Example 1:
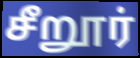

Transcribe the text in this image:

சீறூர்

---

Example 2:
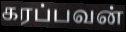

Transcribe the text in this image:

கரப்பவன்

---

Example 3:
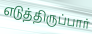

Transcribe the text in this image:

எடுத்திருப்பார்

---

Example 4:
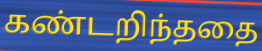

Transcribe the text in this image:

கண்டறிந்ததை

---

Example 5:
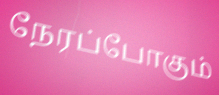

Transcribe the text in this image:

நேரப்போகும்